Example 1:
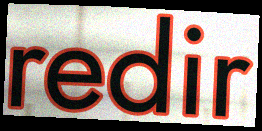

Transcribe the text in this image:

redir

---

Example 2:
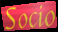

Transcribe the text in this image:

Socio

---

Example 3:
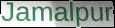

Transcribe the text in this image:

Jamalpur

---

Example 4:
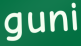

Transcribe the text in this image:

guni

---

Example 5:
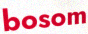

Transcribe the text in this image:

bosom